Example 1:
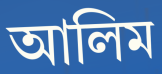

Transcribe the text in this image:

আলিম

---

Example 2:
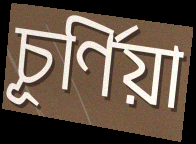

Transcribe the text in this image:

চূর্ণিয়া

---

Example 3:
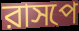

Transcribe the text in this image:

রাসপে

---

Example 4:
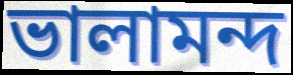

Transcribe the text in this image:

ভালামন্দ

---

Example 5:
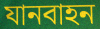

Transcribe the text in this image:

যানবাহন